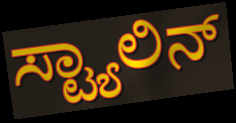
ಸ್ಟ್ಯಾಲಿನ್